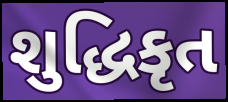
શુદ્ધિકૃત